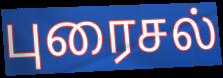
புரைசல்